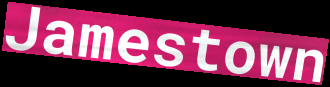
Jamestown